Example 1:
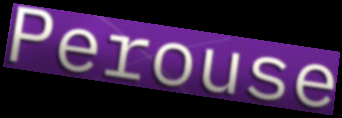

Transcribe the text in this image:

Perouse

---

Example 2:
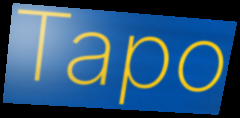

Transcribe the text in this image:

Tapo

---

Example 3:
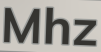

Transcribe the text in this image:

Mhz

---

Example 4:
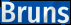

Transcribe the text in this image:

Bruns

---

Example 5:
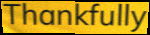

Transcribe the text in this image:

Thankfully